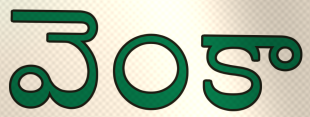
వెంకా